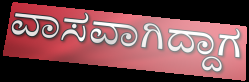
ವಾಸವಾಗಿದ್ದಾಗ